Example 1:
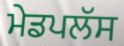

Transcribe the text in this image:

ਮੇਡਪਲੱਸ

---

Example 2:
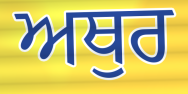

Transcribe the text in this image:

ਅਥੁਰ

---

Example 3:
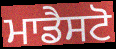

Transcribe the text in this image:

ਮਾਡੈਸਟੋ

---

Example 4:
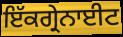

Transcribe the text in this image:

ਇੱਕਗ੍ਰੇਨਾਈਟ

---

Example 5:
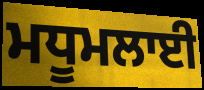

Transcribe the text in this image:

ਮਧੂਮਲਾਈ